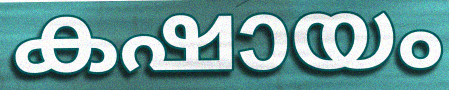
കഷായം